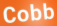
Cobb